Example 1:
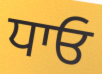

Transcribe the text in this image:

ਧਾਓ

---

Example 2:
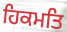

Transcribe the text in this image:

ਹਿਕਮਤਿ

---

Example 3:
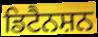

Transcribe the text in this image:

ਡਿਟੈਨਸ਼ਨ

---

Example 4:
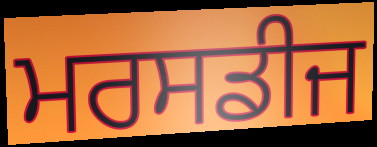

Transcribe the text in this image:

ਮਰਸਡੀਜ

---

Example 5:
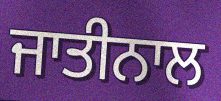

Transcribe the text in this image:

ਜਾਤੀਨਾਲ